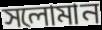
সলোমান